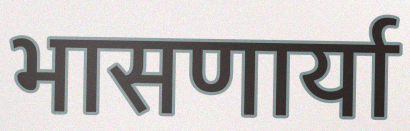
भासणार्या